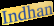
Indhan